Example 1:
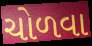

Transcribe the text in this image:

ચોળવા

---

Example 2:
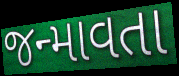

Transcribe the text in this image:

જન્માવતા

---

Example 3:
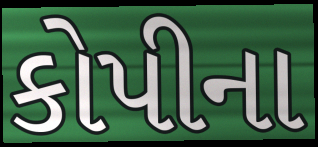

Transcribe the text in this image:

કોપીના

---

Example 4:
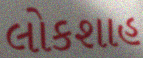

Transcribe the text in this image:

લોકશાહ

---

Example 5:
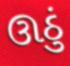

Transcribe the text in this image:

ઊઠું